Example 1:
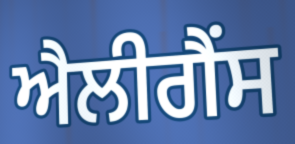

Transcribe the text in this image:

ਐਲੀਗੈਂਸ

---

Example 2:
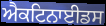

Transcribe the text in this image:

ਐਕਟਿਨਾਈਡਸ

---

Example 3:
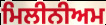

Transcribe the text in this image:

ਮਿਲੀਨੀਅਮ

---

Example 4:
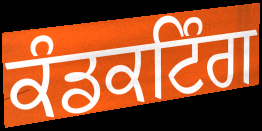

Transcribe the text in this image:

ਕੰਡਕਟਿੰਗ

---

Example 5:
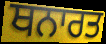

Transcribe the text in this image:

ਥਨਾਰਤ